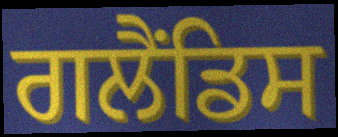
ਗਲੈਂਡਿਸ